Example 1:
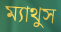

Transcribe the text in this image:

ম্যাথুস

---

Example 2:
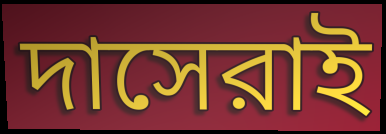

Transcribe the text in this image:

দাসেরাই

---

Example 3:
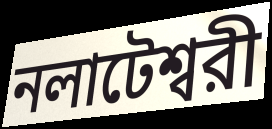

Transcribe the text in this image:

নলাটেশ্বরী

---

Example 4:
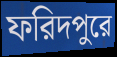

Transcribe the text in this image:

ফরিদপুরে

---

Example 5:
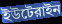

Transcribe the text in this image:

ইউটেরাইন